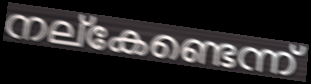
നല്കേണ്ടെന്ന്